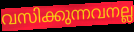
വസിക്കുന്നവനല്ല